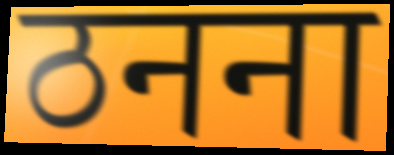
ठनना